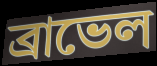
ব্রাভেল